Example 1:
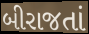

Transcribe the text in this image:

બીરાજતાં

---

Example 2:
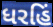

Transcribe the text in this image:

ધરહિં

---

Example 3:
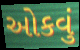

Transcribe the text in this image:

ઓકવું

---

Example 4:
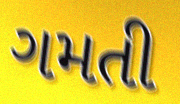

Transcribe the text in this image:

ગમતી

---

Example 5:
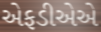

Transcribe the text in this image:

એફડીએએ